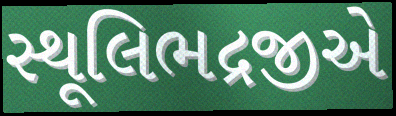
સ્થૂલિભદ્રજીએ